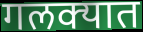
गलक्यात